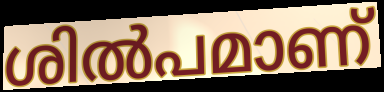
ശിൽപമാണ്